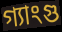
গ্যাংগু